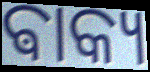
ଵାକ୍ୟ